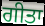
ਗੀਤਾ